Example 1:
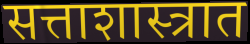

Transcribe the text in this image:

सत्ताशास्त्रात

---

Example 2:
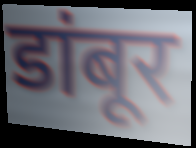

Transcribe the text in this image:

डांबूर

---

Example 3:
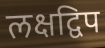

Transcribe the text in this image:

लक्षद्विप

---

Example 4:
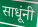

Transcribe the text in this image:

साधूंनी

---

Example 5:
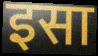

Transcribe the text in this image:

इसा